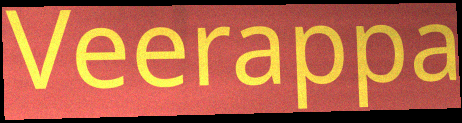
Veerappa